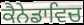
ਕੈਨੇਡਾਵਿਚ